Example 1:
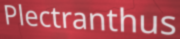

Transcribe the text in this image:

Plectranthus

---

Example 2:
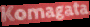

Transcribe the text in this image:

Komagata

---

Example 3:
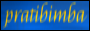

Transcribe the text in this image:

pratibimba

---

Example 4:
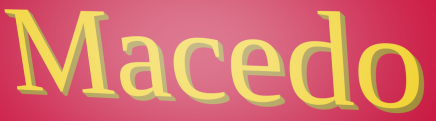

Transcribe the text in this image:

Macedo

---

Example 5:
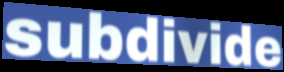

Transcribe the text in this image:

subdivide